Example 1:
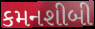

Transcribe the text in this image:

કમનશીબી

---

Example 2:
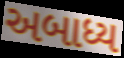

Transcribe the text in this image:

અબાધ્ય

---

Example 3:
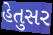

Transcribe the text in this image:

હેતુસર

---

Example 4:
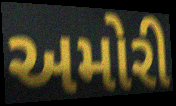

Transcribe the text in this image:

અમોરી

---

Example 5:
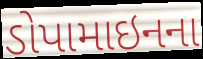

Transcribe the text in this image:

ડોપામાઇનના